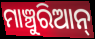
ମାଞ୍ଚୁରିଆନ୍